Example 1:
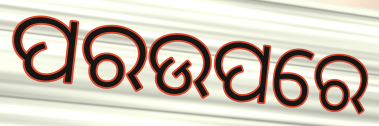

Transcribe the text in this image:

ପରଉପରେ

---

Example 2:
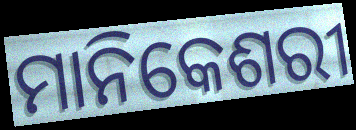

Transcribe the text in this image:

ମାନିକେଶରୀ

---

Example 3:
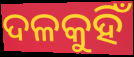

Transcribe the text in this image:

ଦଳକୁହିଁ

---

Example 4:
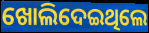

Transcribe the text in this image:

ଖୋଲିଦେଇଥିଲେ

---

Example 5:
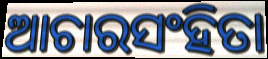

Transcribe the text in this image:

ଆଚାରସଂହିତା